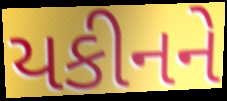
યકીનને